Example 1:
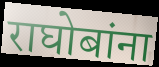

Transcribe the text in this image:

राघोबांना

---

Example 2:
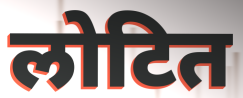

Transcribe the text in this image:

लोटित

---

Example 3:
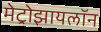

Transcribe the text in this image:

मेट्रोझायलॉन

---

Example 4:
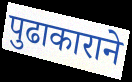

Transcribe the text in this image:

पुढाकाराने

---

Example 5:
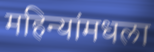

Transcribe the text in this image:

महिन्यांमधला